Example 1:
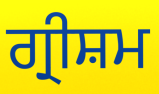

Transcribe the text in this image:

ਗ੍ਰੀਸ਼ਮ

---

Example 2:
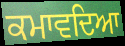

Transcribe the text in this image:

ਕਮਾਵਦਿਆ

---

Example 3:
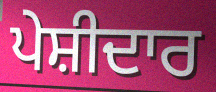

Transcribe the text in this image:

ਪੇਸ਼ੀਦਾਰ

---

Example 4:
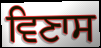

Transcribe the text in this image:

ਵਿਣਾਸ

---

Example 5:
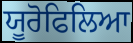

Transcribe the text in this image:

ਯੂਰੋਫਿਲਿਆ